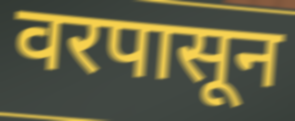
वरपासून